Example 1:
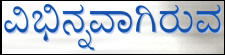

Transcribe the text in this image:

ವಿಭಿನ್ನವಾಗಿರುವ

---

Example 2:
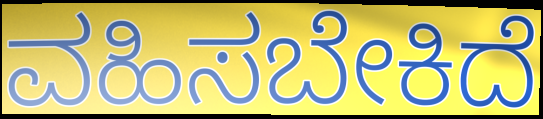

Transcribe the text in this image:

ವಹಿಸಬೇಕಿದೆ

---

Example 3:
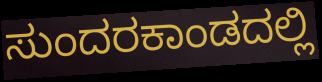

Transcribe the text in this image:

ಸುಂದರಕಾಂಡದಲ್ಲಿ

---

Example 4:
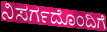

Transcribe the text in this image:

ನಿಸರ್ಗದೊಂದಿಗೆ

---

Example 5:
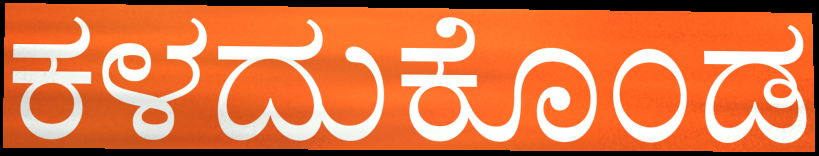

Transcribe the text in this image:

ಕಳದುಕೊಂಡ